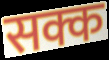
सक्क